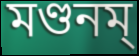
মণ্ডনম্